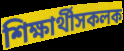
শিক্ষাৰ্থীসকলক